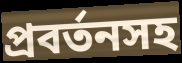
প্রবর্তনসহ